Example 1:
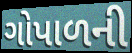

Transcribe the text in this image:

ગોપાળની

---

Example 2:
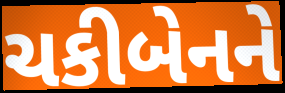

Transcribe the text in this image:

ચકીબેનને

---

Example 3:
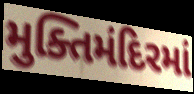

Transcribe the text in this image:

મુક્તિમંદિરમાં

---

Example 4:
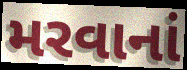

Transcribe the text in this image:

મરવાનાં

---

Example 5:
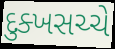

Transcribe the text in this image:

દુક્ખસચ્ચે